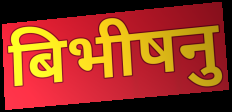
बिभीषनु